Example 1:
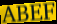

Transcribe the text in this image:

ABEF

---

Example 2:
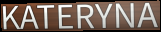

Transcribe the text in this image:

KATERYNA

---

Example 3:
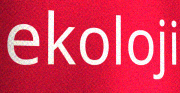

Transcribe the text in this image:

ekoloji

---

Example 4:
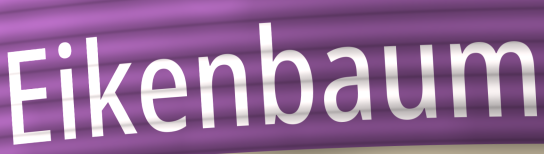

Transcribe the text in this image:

Eikenbaum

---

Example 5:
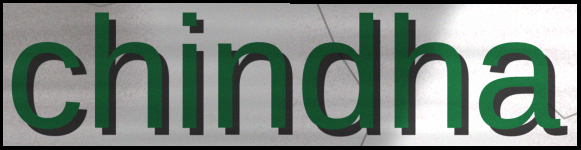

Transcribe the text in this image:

chindha